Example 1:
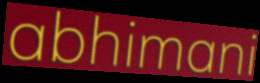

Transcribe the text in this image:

abhimani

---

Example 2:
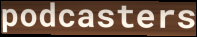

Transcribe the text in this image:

podcasters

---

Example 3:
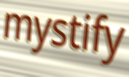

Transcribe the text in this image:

mystify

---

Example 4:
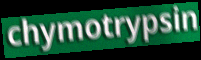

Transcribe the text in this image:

chymotrypsin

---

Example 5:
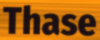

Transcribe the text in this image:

Thase